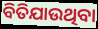
ବିତିଯାଉଥିବା